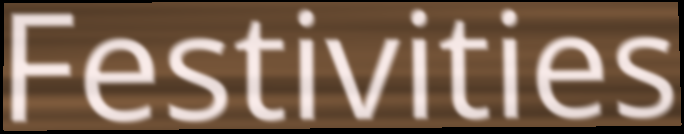
Festivities